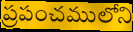
ప్రపంచములోని